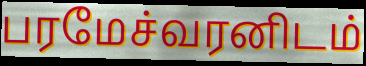
பரமேச்வரனிடம்